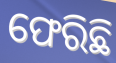
ଫେରିଛି